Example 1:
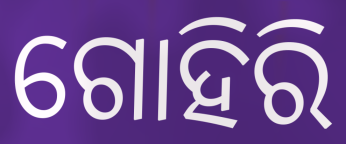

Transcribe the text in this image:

ଗୋହିରି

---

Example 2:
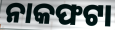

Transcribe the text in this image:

ନାକଫଟା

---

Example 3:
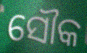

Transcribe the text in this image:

ସୌକ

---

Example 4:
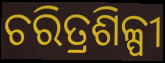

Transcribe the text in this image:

ଚରିତ୍ରଶିଳ୍ପୀ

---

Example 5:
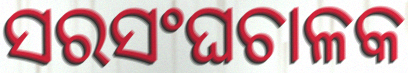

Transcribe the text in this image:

ସରସଂଘଚାଳକ